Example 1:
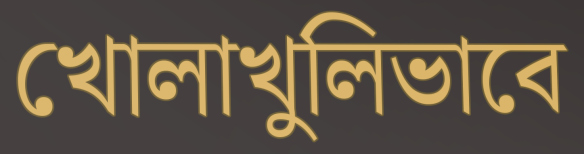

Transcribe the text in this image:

খোলাখুলিভাবে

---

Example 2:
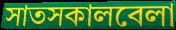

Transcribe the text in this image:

সাতসকালবেলা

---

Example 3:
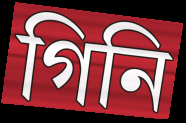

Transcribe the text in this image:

গিনি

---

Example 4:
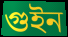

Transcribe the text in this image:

গুইন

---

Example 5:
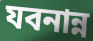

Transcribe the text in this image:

যবনান্ন